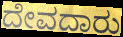
ದೇವದಾರು